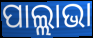
ପାଲ୍ଲାଭା